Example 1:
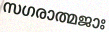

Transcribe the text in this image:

സഗരാത്മജാഃ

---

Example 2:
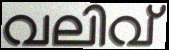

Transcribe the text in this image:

വലിവ്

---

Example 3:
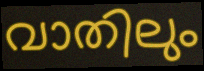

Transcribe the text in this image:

വാതിലും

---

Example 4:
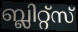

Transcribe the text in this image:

ബ്ലിറ്റ്സ്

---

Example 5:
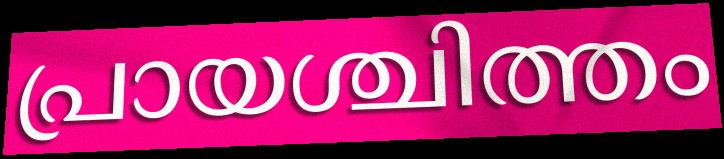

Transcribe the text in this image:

പ്രായശ്ചിത്തം